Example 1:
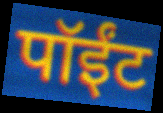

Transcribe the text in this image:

पॉईंट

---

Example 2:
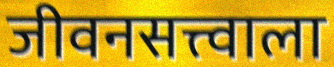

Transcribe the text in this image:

जीवनसत्त्वाला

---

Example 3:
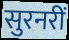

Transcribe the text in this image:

सुरनरीं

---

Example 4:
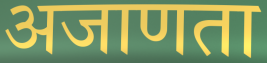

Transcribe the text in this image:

अजाणता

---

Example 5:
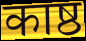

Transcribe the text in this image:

काष्ठ